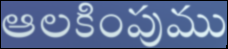
ఆలకింపుము